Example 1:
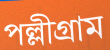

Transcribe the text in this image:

পল্লীগ্রাম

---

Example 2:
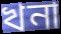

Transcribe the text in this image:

খনা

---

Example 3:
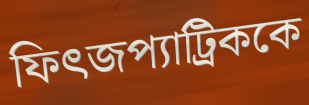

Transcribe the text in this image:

ফিৎজপ্যাট্রিককে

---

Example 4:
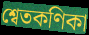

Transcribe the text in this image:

শ্বেতকণিকা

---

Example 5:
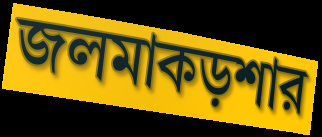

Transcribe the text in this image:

জলমাকড়শার